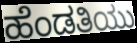
ಹೆಂಡತಿಯು